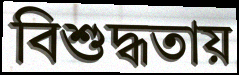
বিশুদ্ধতায়